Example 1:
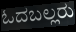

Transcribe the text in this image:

ಓದಬಲ್ಲರು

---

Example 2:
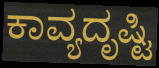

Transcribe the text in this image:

ಕಾವ್ಯದೃಷ್ಟಿ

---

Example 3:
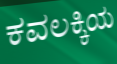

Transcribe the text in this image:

ಕವಲಕ್ಕಿಯ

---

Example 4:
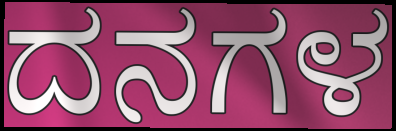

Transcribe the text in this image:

ದನಗಳ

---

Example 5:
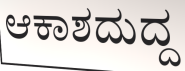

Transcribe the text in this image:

ಆಕಾಶದುದ್ದ